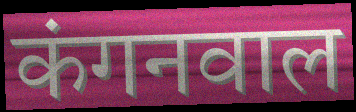
कंगनवाल